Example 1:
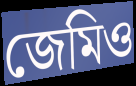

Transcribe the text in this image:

জেমিও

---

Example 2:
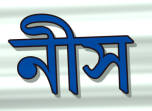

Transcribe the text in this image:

নীস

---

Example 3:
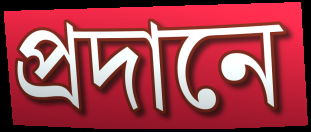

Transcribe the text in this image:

প্রদানে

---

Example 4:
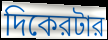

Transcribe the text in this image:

দিকেরটার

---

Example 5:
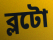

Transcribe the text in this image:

ব্লটো